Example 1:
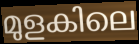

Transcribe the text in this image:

മുളകിലെ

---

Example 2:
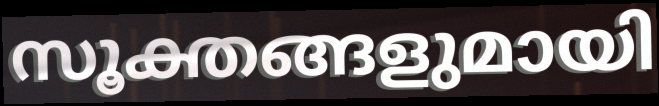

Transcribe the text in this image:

സൂക്തങ്ങളുമായി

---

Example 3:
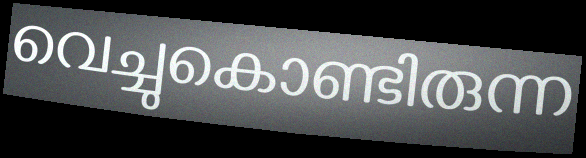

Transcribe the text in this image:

വെച്ചുകൊണ്ടിരുന്ന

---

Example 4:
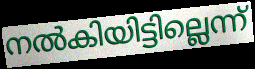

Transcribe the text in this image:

നൽകിയിട്ടില്ലെന്ന്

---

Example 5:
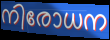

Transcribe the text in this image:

നിരോധന